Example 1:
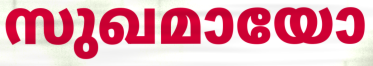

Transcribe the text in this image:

സുഖമായോ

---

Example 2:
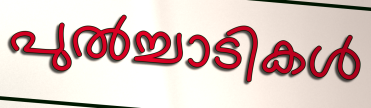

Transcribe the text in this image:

പുൽച്ചാടികൾ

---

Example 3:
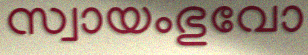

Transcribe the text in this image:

സ്വായംഭുവോ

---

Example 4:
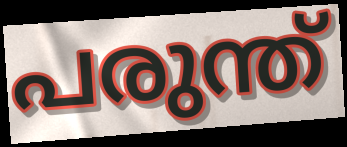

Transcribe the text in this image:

പരുന്ത്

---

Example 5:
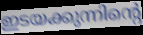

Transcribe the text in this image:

ഇടയക്കുന്നിന്റെ